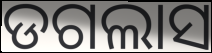
ଡଗଲାସ